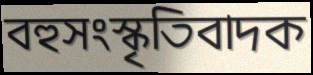
বহুসংস্কৃতিবাদক